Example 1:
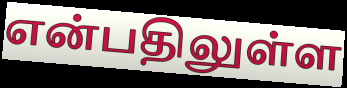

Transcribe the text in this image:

என்பதிலுள்ள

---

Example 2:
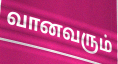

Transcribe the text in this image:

வானவரும்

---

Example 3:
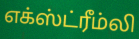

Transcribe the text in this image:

எக்ஸ்ட்ரீம்லி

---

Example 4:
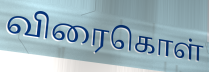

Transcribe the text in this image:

விரைகொள்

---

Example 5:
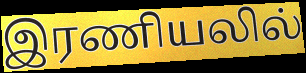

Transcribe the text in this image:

இரணியலில்